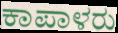
ಕಾಪಾಳರು